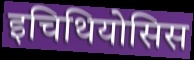
इचिथियोसिस